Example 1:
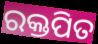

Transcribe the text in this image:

ରକ୍ତପିତ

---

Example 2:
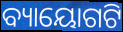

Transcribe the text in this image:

ବ୍ୟାୟୋଗଟି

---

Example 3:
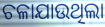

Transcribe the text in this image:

ଚଳାଯାଉଥିଲା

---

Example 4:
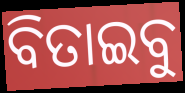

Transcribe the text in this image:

ବିତାଇବୁ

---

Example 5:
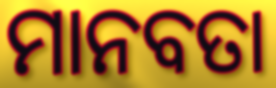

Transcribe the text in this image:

ମାନବତା